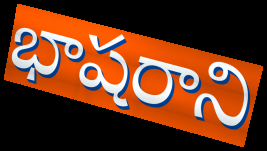
భాషరాని